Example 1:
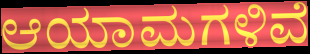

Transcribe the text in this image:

ಆಯಾಮಗಳಿವೆ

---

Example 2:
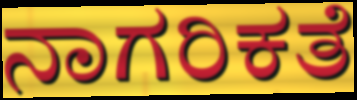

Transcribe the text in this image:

ನಾಗರಿಕತೆ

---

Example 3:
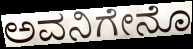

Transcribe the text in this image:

ಅವನಿಗೇನೊ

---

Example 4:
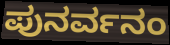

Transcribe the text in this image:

ಪುನರ್ವನಂ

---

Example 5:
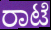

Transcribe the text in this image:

ರಾಟೆ